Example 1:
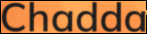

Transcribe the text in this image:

Chadda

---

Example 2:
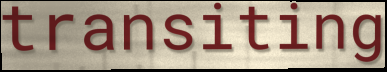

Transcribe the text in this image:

transiting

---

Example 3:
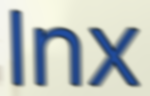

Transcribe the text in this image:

lnx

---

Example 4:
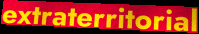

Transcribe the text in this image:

extraterritorial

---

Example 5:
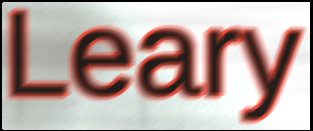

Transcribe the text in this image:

Leary